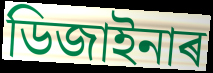
ডিজাইনাৰ